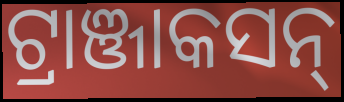
ଟ୍ରାଞ୍ଜାକସନ୍